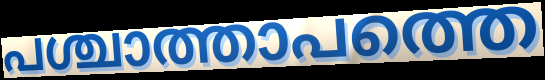
പശ്ചാത്താപത്തെ